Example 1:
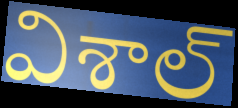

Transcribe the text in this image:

విశాల్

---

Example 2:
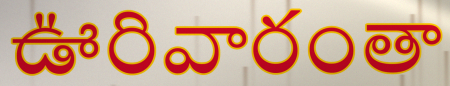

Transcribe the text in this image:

ఊరివారంతా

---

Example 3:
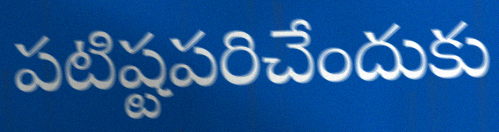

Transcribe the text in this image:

పటిష్టపరిచేందుకు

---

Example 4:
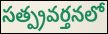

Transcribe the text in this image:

సత్ప్రవర్తనలో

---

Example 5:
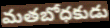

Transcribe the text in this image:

మతబోధకుడు